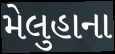
મેલુહાના